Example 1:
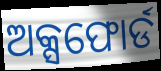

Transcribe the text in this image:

ଅକ୍ସଫୋର୍ଡ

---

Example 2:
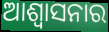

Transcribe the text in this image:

ଆଶ୍ୱାସନାର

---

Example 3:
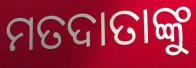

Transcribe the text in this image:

ମତଦାତାଙ୍କୁ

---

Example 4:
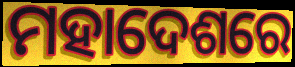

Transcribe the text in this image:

ମହାଦେଶରେ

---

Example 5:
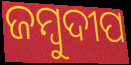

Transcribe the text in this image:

ଜମ୍ବୁଦୀପ